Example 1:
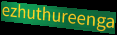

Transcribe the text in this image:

ezhuthureenga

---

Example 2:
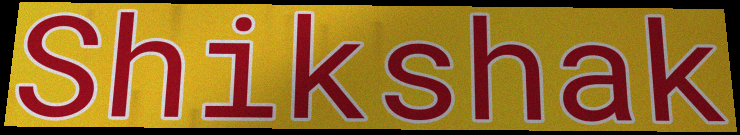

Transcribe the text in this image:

Shikshak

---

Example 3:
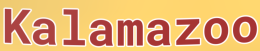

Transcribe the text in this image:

Kalamazoo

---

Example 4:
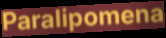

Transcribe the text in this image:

Paralipomena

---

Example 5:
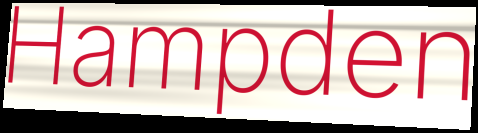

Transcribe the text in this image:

Hampden